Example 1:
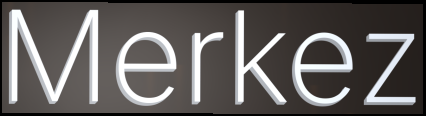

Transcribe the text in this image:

Merkez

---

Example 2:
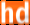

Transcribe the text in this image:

hd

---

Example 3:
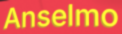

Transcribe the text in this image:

Anselmo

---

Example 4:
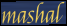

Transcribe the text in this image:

mashal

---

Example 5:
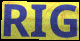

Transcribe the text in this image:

RIG